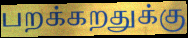
பறக்கறதுக்கு